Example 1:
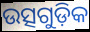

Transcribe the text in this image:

ଉତ୍ସଗୁଡ଼ିକ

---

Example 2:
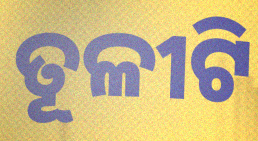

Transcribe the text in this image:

ତୂଳୀଟି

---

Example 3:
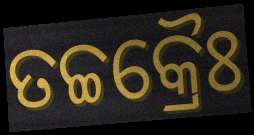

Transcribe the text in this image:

ତଚ୍ଚକ୍ରୈଃ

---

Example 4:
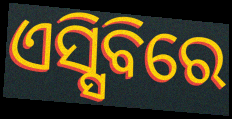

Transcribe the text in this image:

ଏସ୍ସିବିରେ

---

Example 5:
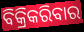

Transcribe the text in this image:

ବିକ୍ରିକରିବାର